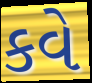
કવે